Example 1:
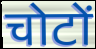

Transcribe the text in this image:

चोटों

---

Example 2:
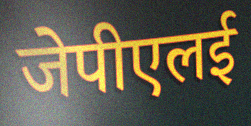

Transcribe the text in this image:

जेपीएलई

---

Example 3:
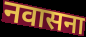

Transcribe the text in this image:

नवासना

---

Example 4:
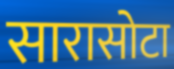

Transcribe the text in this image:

सारासोटा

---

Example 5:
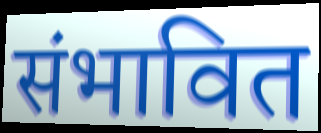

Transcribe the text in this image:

संभावित